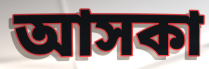
আসকা